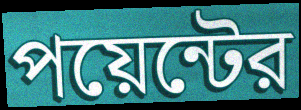
পয়েন্টের